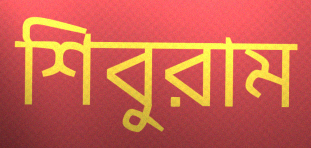
শিবুরাম